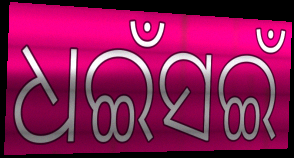
ଧଇଁସଇଁ